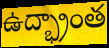
ఉద్భ్రాంత